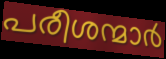
പരീശന്മാർ